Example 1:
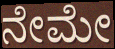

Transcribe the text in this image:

ನೇಮೇ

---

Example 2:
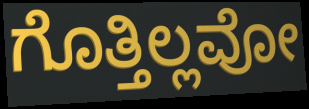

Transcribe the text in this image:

ಗೊತ್ತಿಲ್ಲವೋ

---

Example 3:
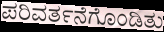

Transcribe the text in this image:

ಪರಿವರ್ತನೆಗೊಂಡಿತು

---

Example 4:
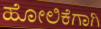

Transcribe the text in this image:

ಹೋಲಿಕೆಗಾಗಿ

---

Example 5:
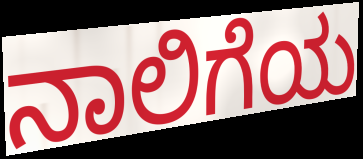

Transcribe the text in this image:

ನಾಲಿಗೆಯ